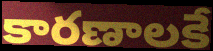
కారణాలకే